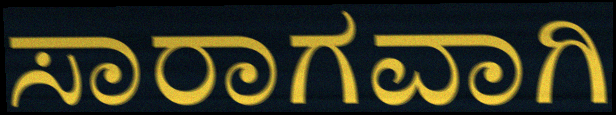
ಸಾರಾಗವಾಗಿ